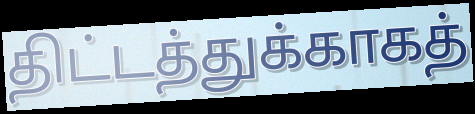
திட்டத்துக்காகத்